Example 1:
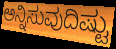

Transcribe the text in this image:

ಅನ್ನಿಸುವುದಿಷ್ಟು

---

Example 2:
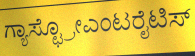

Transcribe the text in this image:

ಗ್ಯಾಸ್ಟ್ರೋಎಂಟರೈಟಿಸ್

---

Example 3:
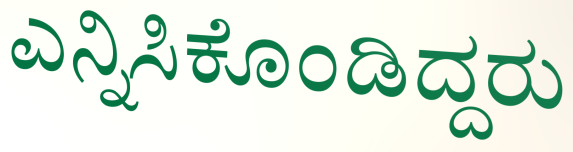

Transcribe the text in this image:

ಎನ್ನಿಸಿಕೊಂಡಿದ್ದರು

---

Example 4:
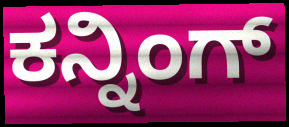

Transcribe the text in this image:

ಕನ್ನಿಂಗ್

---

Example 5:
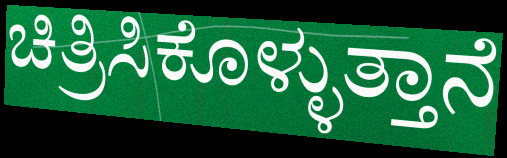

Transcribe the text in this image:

ಚಿತ್ರಿಸಿಕೊಳ್ಳುತ್ತಾನೆ